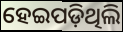
ହେଇପଡ଼ିଥିଲି